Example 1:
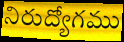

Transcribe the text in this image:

నిరుద్యోగము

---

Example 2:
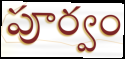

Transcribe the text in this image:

పూర్వం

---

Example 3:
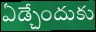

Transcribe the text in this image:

ఏడ్చేందుకు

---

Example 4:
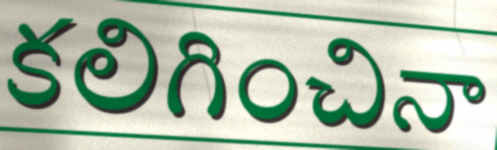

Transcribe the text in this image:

కలిగించినా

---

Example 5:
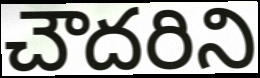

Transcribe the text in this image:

చౌదరిని